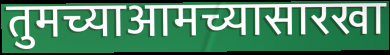
तुमच्याआमच्यासारखा